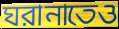
ঘরানাতেও